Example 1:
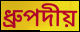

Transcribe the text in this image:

ধ্রুপদীয়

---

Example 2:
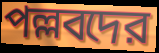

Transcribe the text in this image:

পল্লবদের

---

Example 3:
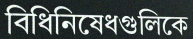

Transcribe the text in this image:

বিধিনিষেধগুলিকে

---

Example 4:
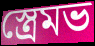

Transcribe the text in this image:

স্ত্রেমভ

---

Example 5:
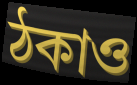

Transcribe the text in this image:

ঠকাও